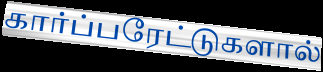
கார்ப்பரேட்டுகளால்